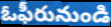
ఓఫీరునుండి